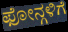
ಫೋನ್ಗಳಿಗೆ